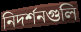
নিদর্শনগুলি